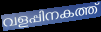
വളപ്പിനകത്ത്